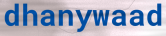
dhanywaad